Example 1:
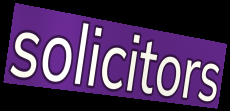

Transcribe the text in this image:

solicitors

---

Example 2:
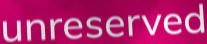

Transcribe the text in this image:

unreserved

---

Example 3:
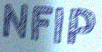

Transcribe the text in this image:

NFIP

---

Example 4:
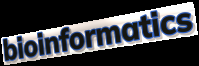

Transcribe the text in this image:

bioinformatics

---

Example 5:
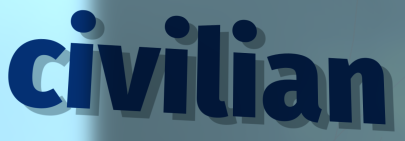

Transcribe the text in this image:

civilian